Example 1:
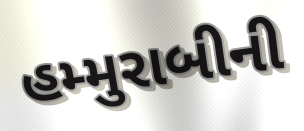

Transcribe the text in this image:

હમ્મુરાબીની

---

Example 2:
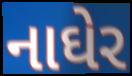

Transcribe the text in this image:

નાઘેર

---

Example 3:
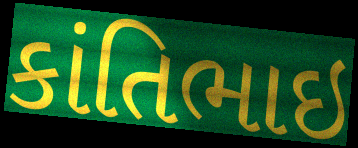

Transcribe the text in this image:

કાંતિભાઇ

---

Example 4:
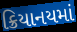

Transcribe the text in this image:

ક્રિયાનયમાં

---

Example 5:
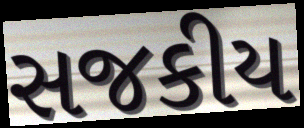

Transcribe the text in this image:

સજકીય